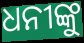
ଧନୀଙ୍କୁ